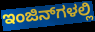
ಇಂಜಿನ್‌ಗಳಲ್ಲಿ